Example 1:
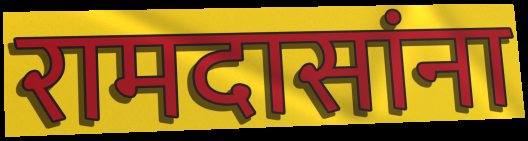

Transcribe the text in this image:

रामदासांना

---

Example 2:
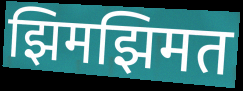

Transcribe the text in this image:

झिमझिमत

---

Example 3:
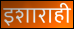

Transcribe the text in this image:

इशाराही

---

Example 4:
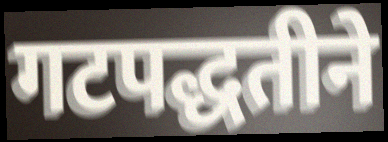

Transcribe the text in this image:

गटपद्धतीने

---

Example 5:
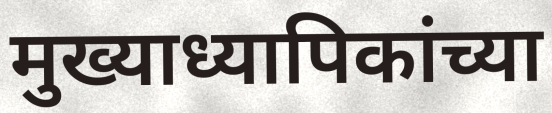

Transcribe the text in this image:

मुख्याध्यापिकांच्या